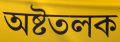
অষ্টতলক